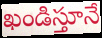
ఖండిస్తూనే